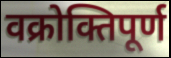
वक्रोक्तिपूर्ण